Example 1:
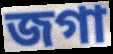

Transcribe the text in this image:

জগা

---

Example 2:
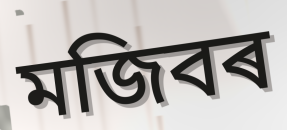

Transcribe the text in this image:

মজিবৰ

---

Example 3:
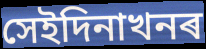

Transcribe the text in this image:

সেইদিনাখনৰ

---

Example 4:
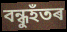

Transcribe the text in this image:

বন্ধুহঁতৰ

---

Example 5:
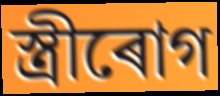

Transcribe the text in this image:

স্ত্ৰীৰোগ